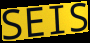
SEIS